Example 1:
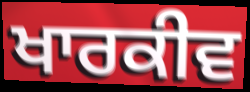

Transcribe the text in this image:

ਖਾਰਕੀਵ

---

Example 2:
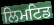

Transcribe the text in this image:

ਲਿਮਟਿਡ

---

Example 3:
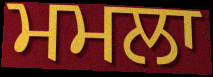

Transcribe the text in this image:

ਮਮਲਾ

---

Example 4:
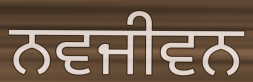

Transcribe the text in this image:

ਨਵਜੀਵਨ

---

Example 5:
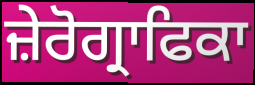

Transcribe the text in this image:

ਜ਼ੇਰੋਗ੍ਰਾਫਿਕਾ